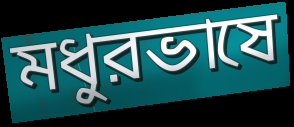
মধুরভাষে